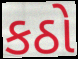
કઠો